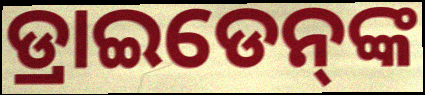
ଡ୍ରାଇଡେନ୍‌ଙ୍କ